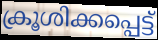
ക്രൂശിക്കപ്പെട്ട്